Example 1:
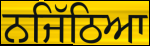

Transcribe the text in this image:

ਨਜਿੱਠਿਆ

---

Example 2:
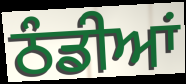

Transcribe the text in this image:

ਠੰਡੀਆਂ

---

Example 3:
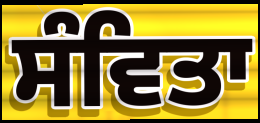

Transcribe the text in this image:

ਸੰਵਿਤਾ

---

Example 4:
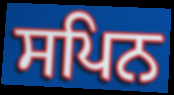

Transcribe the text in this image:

ਸਪਿਨ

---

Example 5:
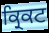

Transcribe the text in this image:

ਕ੍ਰਿਕਟ